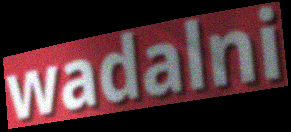
wadalni